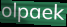
olpaek